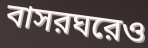
বাসরঘরেও